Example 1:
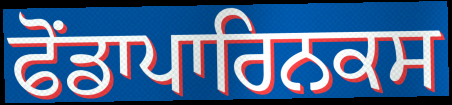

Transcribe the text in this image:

ਫੋਂਡਾਪਾਰਿਨਕਸ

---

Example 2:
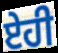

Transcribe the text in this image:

ਏਹੀ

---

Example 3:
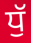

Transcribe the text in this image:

ਧੁੱ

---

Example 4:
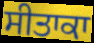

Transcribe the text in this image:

ਸੀਤਾਕਾ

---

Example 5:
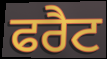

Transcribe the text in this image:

ਫਰੈਟ